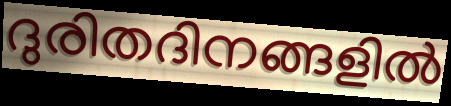
ദുരിതദിനങ്ങളിൽ